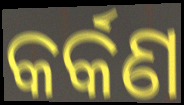
କର୍କଣ